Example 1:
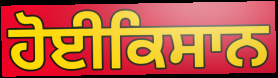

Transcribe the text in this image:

ਹੋਈਕਿਸਾਨ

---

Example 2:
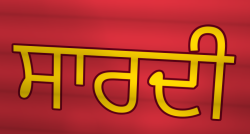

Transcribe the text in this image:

ਸਾਰਦੀ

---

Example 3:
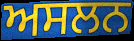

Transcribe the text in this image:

ਅਸਲਨ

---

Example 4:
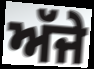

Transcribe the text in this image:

ਅੱਜੇ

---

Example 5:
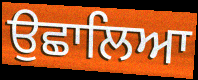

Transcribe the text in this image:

ਉਛਾਲਿਆ